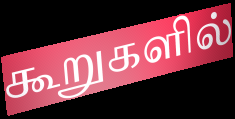
கூறுகளில்